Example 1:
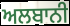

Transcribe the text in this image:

ਅਲਬਾਨੀ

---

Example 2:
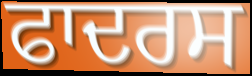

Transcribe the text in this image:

ਫਾਦਰਸ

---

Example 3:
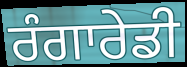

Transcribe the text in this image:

ਰੰਗਾਰੇਡੀ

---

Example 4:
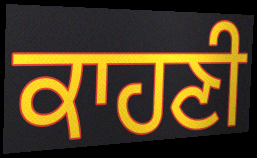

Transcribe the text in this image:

ਕਾਹਣੀ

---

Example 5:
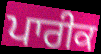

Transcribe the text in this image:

ਪਾਰੀਕ